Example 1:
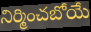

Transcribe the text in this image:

నిర్మించబోయే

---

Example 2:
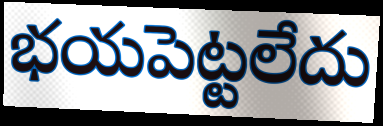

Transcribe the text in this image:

భయపెట్టలేదు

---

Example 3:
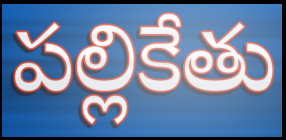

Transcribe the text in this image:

పల్లికేతు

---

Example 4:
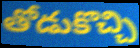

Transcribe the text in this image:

తోడుకొచ్చి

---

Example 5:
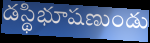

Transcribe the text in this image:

డస్థిభూషణుండు